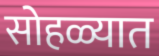
सोहळ्यात